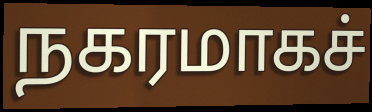
நகரமாகச்